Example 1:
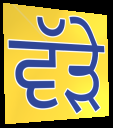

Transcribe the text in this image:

ਵੱਡ਼ੇ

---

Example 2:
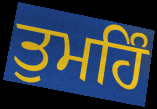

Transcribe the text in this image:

ਤੁਮਹਿੰ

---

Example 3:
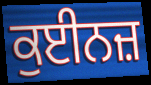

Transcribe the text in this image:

ਕੁਈਨਜ਼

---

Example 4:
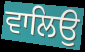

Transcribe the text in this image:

ਵਾਲਿਉ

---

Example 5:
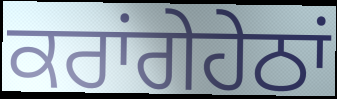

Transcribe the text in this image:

ਕਰਾਂਗੇਹੇਠਾਂ